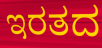
ಇರತದ